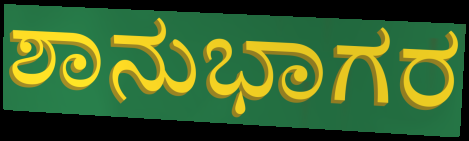
ಶಾನುಭಾಗರ